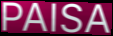
PAISA